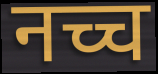
नच्च